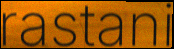
rastani